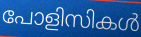
പോളിസികൾ